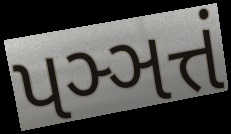
પઞ્ઞત્તં